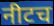
नीटच